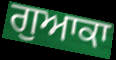
ਗੁਆਕਾ